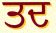
ਤਦ